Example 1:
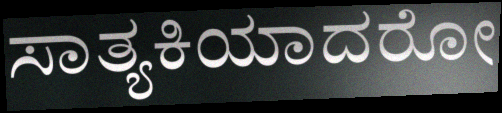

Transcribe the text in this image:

ಸಾತ್ಯಕಿಯಾದರೋ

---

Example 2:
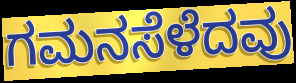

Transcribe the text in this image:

ಗಮನಸೆಳೆದವು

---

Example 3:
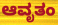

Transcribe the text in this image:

ಆವೃತಂ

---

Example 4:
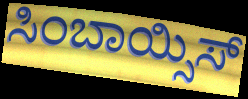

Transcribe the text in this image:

ಸಿಂಬಾಯ್ಸಿಸ್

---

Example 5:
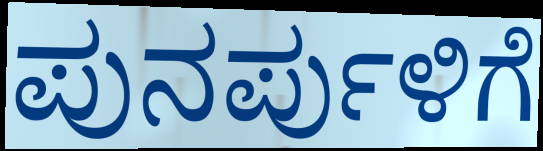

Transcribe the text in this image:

ಪುನರ್ಪುಳಿಗೆ